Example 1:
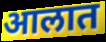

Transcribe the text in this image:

आलात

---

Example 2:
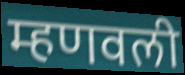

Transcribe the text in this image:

म्हणवली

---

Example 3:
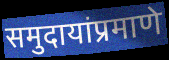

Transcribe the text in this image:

समुदायांप्रमाणे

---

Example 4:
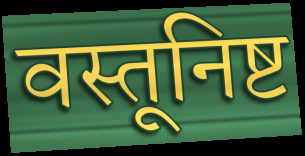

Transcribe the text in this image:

वस्तूनिष्ट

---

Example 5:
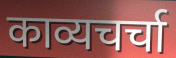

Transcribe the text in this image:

काव्यचर्चा